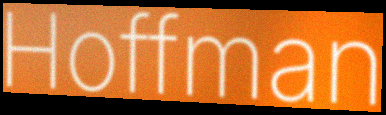
Hoffman